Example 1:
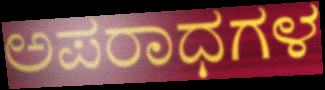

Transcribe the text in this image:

ಅಪರಾಧಗಳ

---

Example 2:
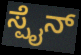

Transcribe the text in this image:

ಸ್ಪೈನ್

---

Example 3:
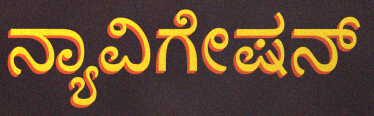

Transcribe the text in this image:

ನ್ಯಾವಿಗೇಷನ್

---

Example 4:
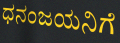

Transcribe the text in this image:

ಧನಂಜಯನಿಗೆ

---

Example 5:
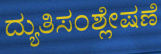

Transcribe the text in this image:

ದ್ಯುತಿಸಂಶ್ಲೇಷಣೆ